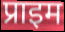
प्राइम